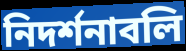
নিদর্শনাবলি